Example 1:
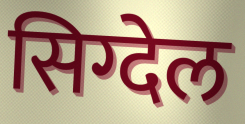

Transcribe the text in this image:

सिग्देल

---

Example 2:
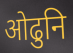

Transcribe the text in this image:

ओढुनि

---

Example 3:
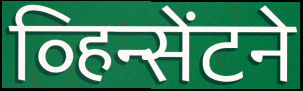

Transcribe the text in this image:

व्हिन्सेंटने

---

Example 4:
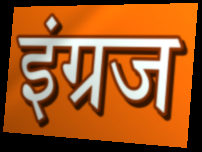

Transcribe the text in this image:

इंग्रज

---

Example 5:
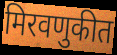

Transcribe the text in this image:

मिरवणुकीत